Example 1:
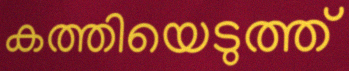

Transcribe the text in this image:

കത്തിയെടുത്ത്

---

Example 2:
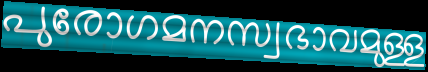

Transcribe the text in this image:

പുരോഗമനസ്വഭാവമുള്ള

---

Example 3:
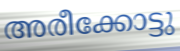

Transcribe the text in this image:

അരീക്കോട്ടു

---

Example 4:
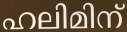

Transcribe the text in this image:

ഹലിമിന്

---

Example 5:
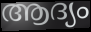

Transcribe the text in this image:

ആദ്യം